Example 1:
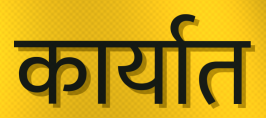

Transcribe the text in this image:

कार्यात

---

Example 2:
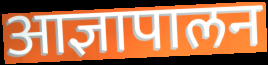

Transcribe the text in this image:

आज्ञापालन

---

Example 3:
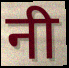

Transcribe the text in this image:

नी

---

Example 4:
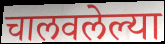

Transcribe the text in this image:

चालवलेल्या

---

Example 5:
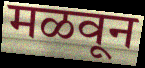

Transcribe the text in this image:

मळवून